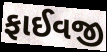
ફાઈવજી